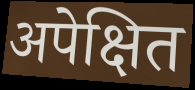
अपेक्षित